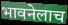
भावनेलाच